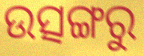
ଉତ୍ସଙ୍ଗରୁ